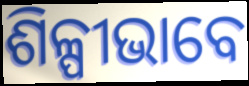
ଶିଳ୍ପୀଭାବେ